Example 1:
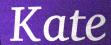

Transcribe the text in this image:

Kate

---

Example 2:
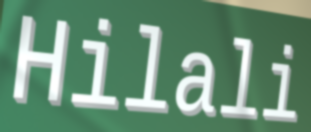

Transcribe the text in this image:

Hilali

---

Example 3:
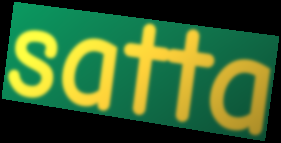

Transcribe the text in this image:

satta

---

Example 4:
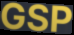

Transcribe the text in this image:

GSP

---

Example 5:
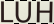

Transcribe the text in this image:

LUH